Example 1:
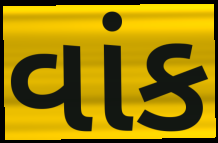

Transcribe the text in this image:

વાંક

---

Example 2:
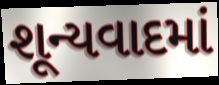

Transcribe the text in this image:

શૂન્યવાદમાં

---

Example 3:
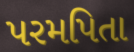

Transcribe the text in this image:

પરમપિતા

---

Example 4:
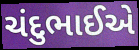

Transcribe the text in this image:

ચંદુભાઈએ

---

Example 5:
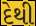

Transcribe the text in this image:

દેથી